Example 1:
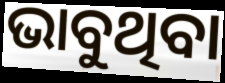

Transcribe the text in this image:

ଭାବୁଥିବା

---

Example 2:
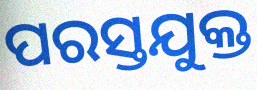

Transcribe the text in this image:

ପରସ୍ତଯୁକ୍ତ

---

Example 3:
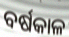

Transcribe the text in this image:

ବର୍ଷକାଳ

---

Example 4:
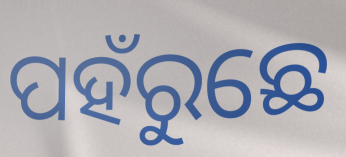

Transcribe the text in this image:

ପହଁରୁଛେ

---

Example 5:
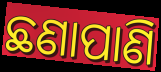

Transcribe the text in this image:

ଛଣାପାଣି